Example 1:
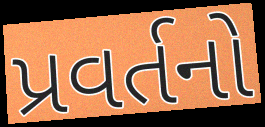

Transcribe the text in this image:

પ્રવર્તનો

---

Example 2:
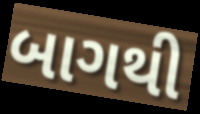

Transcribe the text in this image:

બાગથી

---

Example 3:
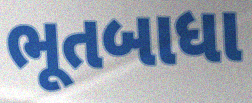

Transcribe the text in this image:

ભૂતબાધા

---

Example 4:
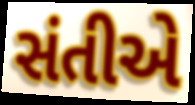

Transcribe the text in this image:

સંતીએ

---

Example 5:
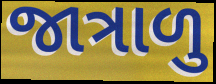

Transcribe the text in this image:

જાત્રાળુ